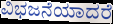
ವಿಭಜನೆಯಾದರೆ